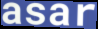
asar